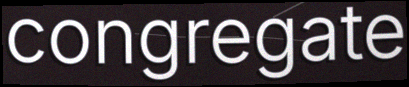
congregate